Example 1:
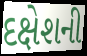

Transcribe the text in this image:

દક્ષેશની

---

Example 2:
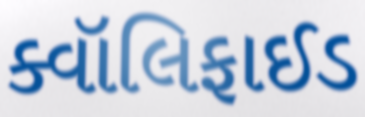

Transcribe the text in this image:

ક્વૉલિફાઈડ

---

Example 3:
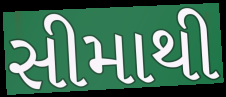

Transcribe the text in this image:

સીમાથી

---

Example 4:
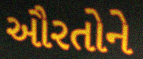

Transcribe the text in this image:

ઔરતોને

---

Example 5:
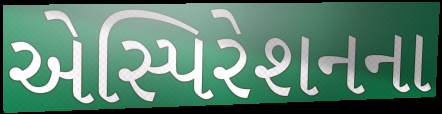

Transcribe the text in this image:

એસ્પિરેશનના